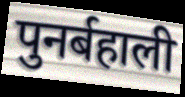
पुनर्बहाली